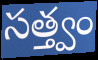
సత్త్వం